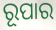
ରୂପାର